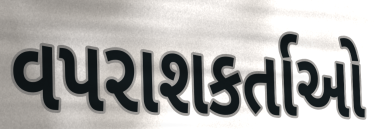
વપરાશકર્તાઓ